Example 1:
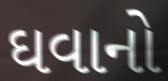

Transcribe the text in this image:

ઘવાનો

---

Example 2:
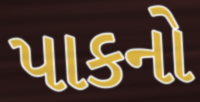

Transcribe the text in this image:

પાકનો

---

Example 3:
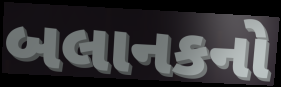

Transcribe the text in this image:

બલાનકનો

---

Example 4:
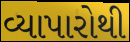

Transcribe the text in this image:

વ્યાપારોથી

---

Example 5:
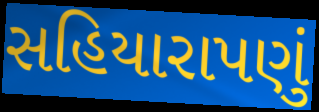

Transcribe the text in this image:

સહિયારાપણું